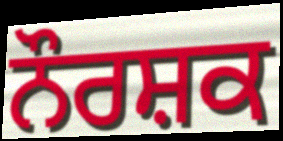
ਨੌਰਸ਼ਕ